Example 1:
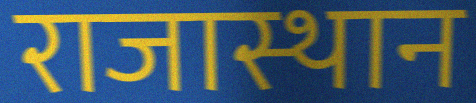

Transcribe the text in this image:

राजास्थान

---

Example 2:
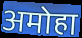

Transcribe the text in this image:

अमोहा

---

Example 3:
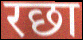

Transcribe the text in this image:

रछा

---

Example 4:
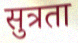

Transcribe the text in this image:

सुत्रता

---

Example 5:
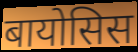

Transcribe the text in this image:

बायोसिस